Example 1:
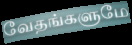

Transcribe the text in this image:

வேதங்களுமே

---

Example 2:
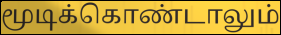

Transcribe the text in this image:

மூடிக்கொண்டாலும்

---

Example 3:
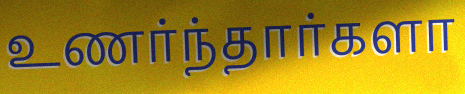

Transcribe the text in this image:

உணர்ந்தார்களா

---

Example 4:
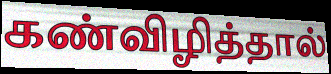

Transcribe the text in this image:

கண்விழித்தால்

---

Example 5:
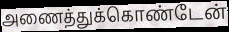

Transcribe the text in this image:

அணைத்துக்கொண்டேன்